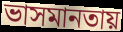
ভাসমানতায়